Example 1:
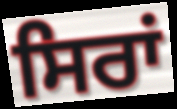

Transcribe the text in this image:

ਸਿਰਾਂ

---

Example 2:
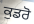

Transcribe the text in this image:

ਕੁਡਰੋ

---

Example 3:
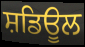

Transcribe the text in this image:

ਸ਼ਡਿਊਲ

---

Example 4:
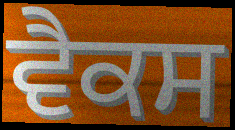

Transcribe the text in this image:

ਵੈਕਸ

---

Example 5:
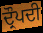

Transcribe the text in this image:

ਦ੍ਰੌਪਦੀ